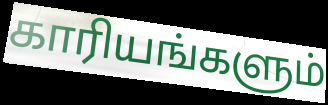
காரியங்களும்